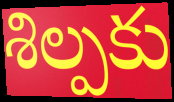
శిల్పకు